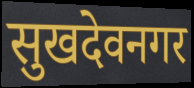
सुखदेवनगर